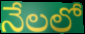
నేలలో